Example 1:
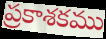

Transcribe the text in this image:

ప్రకాశకము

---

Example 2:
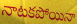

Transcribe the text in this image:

నాటకపోయినా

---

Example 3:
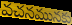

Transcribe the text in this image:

వచనమునకు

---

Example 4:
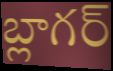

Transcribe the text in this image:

బ్లాగర్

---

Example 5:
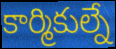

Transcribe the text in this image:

కార్మికుల్నే